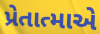
પ્રેતાત્માએ